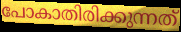
പോകാതിരിക്കുന്നത്